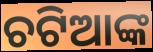
ଚଟିଆଙ୍କ